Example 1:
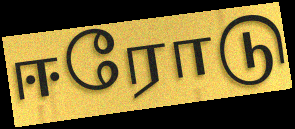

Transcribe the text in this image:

ஈரோடு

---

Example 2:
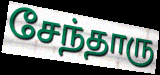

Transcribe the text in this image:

சேந்தாரு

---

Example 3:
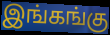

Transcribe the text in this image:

இங்கங்கு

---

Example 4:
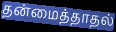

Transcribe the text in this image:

தன்மைத்தாதல்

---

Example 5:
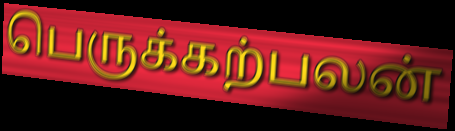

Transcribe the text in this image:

பெருக்கற்பலன்